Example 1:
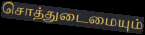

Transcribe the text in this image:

சொத்துடைமையும்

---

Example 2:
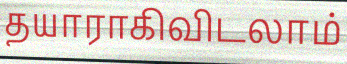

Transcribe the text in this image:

தயாராகிவிடலாம்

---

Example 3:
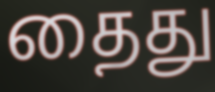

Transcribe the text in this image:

தைது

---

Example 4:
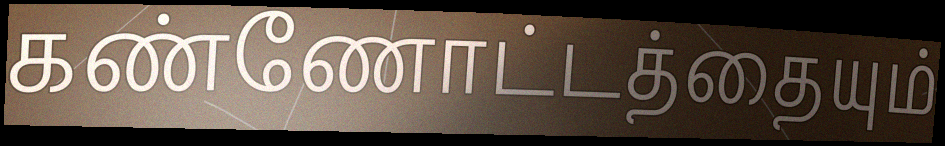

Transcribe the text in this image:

கண்ணோட்டத்தையும்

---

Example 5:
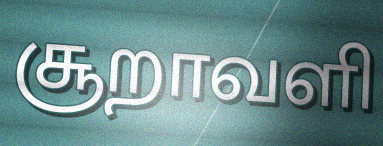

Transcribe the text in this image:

சூறாவளி